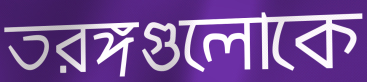
তরঙ্গগুলোকে